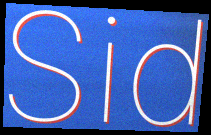
Sid